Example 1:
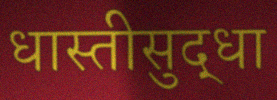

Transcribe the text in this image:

धास्तीसुद्धा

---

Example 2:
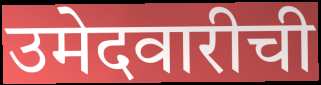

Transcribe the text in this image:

उमेदवारीची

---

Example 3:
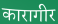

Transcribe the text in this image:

कारागीर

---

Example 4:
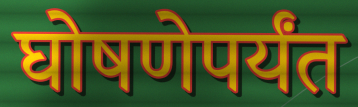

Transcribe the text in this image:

घोषणेपर्यंत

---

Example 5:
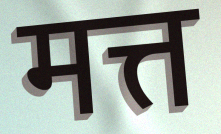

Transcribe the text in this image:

मत्त